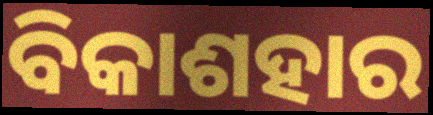
ବିକାଶହାର